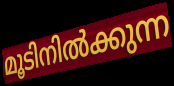
മൂടിനിൽക്കുന്ന